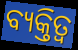
ବ୍ୟକ୍ତିତ୍ଵ